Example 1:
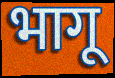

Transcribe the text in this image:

भागू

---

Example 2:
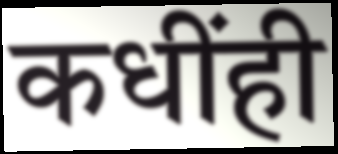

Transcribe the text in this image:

कधींही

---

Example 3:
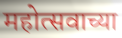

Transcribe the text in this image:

महोत्सवाच्या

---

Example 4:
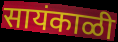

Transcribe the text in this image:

सायंकाळी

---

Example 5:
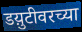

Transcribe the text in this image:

डय़ुटीवरच्या